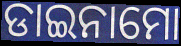
ଡାଇନାମୋ